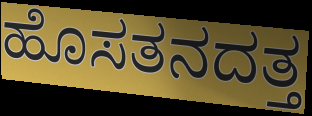
ಹೊಸತನದತ್ತ